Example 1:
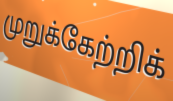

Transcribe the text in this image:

முறுக்கேற்றிக்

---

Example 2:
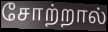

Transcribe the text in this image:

சோற்றால்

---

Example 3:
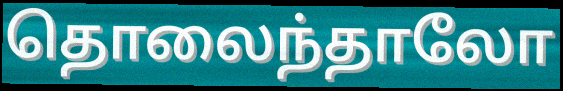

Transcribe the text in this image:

தொலைந்தாலோ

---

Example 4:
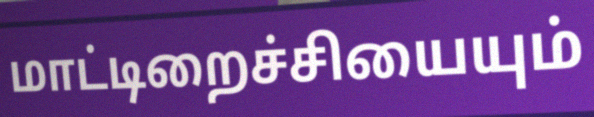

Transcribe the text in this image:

மாட்டிறைச்சியையும்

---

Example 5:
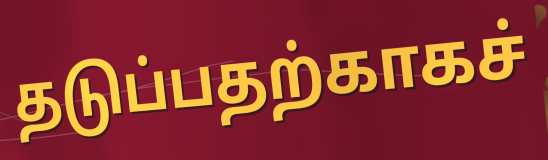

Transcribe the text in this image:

தடுப்பதற்காகச்